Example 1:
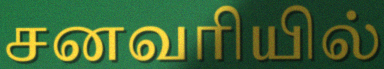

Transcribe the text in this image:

சனவரியில்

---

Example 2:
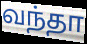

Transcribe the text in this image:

வந்தா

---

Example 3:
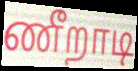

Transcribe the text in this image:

ணீறாடி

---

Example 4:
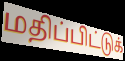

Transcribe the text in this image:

மதிப்பிட்டுக்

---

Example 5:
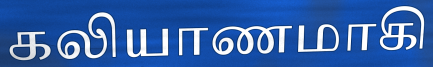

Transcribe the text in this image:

கலியாணமாகி